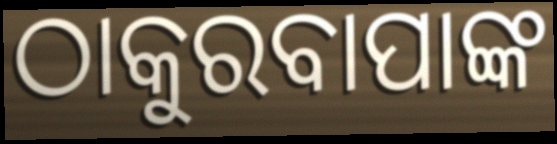
ଠାକୁରବାପାଙ୍କ